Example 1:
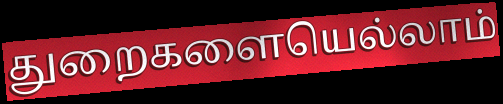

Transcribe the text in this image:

துறைகளையெல்லாம்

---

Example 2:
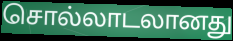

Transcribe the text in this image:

சொல்லாடலானது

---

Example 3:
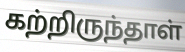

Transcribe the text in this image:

கற்றிருந்தாள்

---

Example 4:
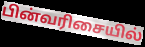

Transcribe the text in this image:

பின்வரிசையில்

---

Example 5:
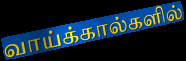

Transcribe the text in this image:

வாய்க்கால்களில்